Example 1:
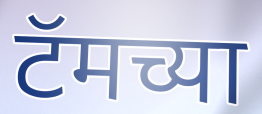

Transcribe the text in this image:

टॅमच्या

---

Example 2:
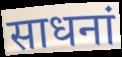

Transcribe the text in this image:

साधनां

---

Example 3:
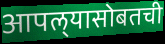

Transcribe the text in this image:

आपल्यासोबतची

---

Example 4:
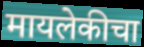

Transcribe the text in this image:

मायलेकीचा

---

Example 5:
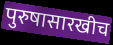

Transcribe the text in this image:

पुरुषासारखीच